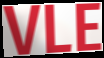
VLE